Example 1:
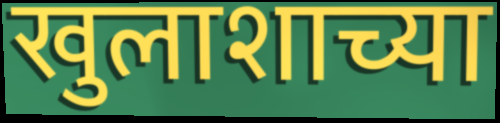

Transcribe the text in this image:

खुलाशाच्या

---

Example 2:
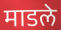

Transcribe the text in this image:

माडले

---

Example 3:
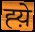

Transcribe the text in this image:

ह्य़े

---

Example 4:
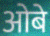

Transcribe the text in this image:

ओबे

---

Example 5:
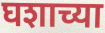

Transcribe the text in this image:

घशाच्या